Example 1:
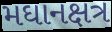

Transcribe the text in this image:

મઘાનક્ષત્ર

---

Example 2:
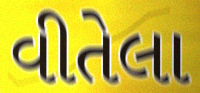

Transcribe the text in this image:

વીતેલા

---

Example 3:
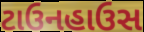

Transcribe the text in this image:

ટાઉનહાઉસ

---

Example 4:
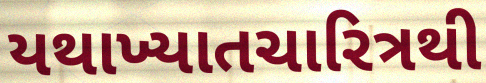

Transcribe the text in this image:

યથાખ્યાતચારિત્રથી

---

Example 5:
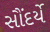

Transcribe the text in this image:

સૌંદર્યે